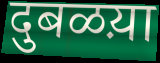
दुबळय़ा